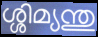
ശ്ശിമ്യന്തു